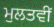
ਮੁਲਤਵੀਂ